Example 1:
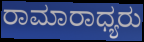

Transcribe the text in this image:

ರಾಮಾರಾಧ್ಯರು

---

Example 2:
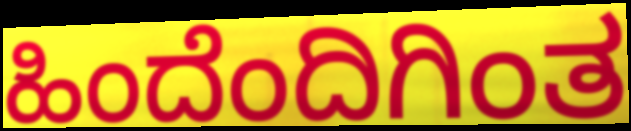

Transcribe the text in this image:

ಹಿಂದೆಂದಿಗಿಂತ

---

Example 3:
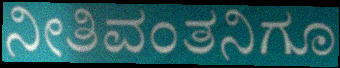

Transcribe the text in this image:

ನೀತಿವಂತನಿಗೂ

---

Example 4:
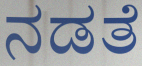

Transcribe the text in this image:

ನಡತೆ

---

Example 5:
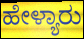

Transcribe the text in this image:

ಹೇಳ್ಯಾರು